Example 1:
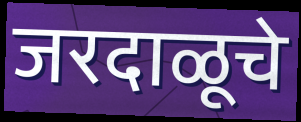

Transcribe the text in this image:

जरदाळूचे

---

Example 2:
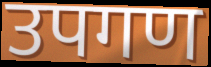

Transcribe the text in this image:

उपगण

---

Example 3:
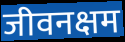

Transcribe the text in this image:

जीवनक्षम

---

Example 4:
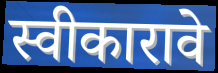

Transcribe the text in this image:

स्वीकारावे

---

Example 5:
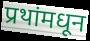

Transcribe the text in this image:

प्रथांमधून